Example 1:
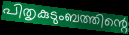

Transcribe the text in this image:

പിതൃകുടുംബത്തിന്റെ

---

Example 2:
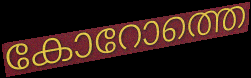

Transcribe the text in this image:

കോറോത്തെ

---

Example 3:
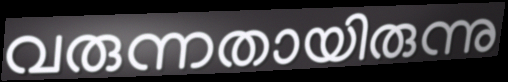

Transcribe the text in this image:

വരുന്നതായിരുന്നു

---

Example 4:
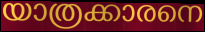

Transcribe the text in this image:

യാത്രക്കാരനെ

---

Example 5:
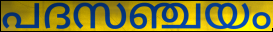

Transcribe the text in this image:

പദസഞ്ചയം